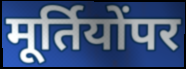
मूर्तियोंपर